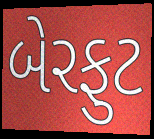
બેરફુટ